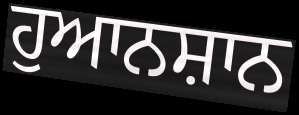
ਹੁਆਨਸ਼ਾਨ